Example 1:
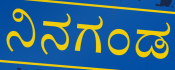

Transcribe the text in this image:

ನಿನಗಂಡ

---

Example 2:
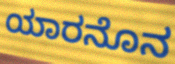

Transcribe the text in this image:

ಯಾರನೊನ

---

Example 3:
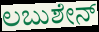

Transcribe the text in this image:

ಲಬುಶೇನ್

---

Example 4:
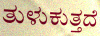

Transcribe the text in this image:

ತುಳುಕುತ್ತದೆ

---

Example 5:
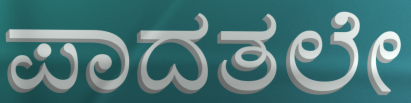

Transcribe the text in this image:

ಪಾದತಲೇ